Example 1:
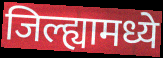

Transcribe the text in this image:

जिल्ह्यामध्ये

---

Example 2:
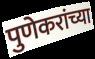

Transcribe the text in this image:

पुणेकरांच्या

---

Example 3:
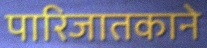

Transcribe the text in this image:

पारिजातकाने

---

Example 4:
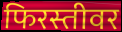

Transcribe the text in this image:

फिरस्तीवर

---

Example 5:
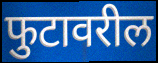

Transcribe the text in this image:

फुटावरील